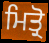
ਮਿਤ੍ਰੋ